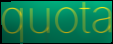
quota